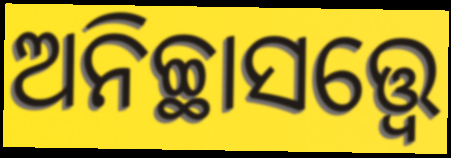
ଅନିଚ୍ଛାସତ୍ତ୍ବେ